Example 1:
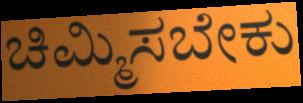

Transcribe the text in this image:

ಚಿಮ್ಮಿಸಬೇಕು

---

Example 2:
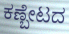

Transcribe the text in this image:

ಕಣ್ಬೇಟದ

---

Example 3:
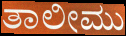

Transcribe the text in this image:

ತಾಲೀಮು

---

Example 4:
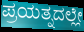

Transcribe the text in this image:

ಪ್ರಯತ್ನದಲ್ಲೇ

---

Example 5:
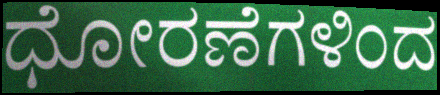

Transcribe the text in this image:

ಧೋರಣೆಗಳಿಂದ